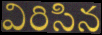
విరిసిన